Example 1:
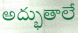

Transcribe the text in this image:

అద్భుతాలే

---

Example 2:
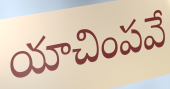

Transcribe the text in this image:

యాచింపవే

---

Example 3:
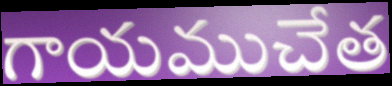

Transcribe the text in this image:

గాయముచేత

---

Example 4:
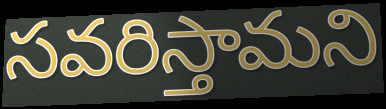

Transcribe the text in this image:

సవరిస్తామని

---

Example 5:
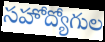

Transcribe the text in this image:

సహోద్యోగుల